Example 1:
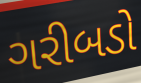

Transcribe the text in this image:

ગરીબડો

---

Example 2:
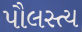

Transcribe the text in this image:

પૌલસ્ત્ય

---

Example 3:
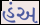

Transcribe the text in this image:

હંઅ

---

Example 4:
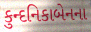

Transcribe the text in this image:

કુન્દનિકાબેનના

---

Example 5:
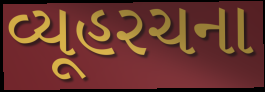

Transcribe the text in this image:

વ્યૂહરચના